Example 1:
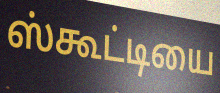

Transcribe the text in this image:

ஸ்கூட்டியை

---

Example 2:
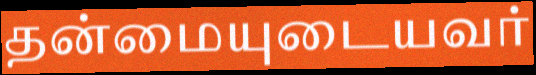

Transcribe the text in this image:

தன்மையுடையவர்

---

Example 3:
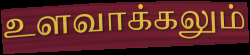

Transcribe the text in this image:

உளவாக்கலும்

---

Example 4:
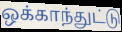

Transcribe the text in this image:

ஒக்காந்துட்டு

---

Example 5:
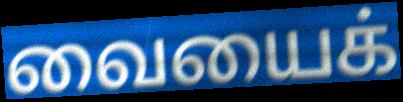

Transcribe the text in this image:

வையைக்